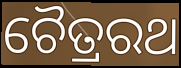
ଚୈତ୍ରରଥ